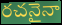
రచనైనా